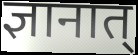
ज्ञानात्